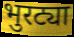
भुरट्या